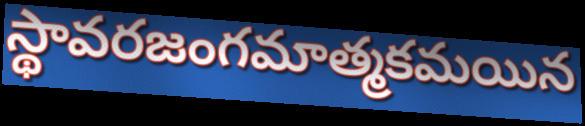
స్థావరజంగమాత్మకమయిన